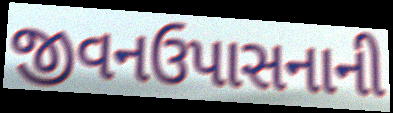
જીવનઉપાસનાની